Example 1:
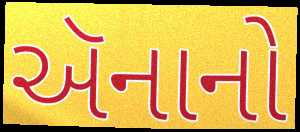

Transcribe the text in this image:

ઍનાનો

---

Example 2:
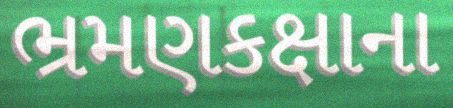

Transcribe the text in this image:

ભ્રમણકક્ષાના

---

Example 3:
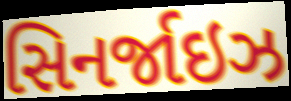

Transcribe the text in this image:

સિનર્જાઇઝ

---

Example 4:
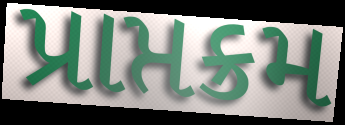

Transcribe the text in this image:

પ્રાપ્તક્રમ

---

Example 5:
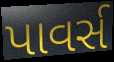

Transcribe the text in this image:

પાવર્સ